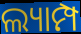
ଲ୍ୟାମ୍ପ